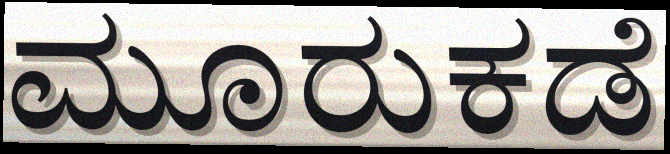
ಮೂರುಕಡೆ